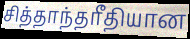
சித்தாந்தரீதியான